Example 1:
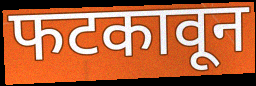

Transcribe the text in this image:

फटकावून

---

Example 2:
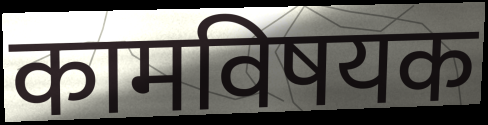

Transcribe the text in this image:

कामविषयक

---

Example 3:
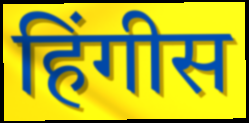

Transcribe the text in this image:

हिंगीस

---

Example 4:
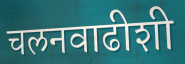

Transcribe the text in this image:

चलनवाढीशी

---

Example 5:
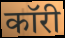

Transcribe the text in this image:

कॉरी